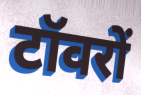
टॉवरों